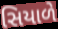
સિયાળે